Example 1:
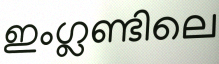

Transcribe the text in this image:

ഇംഗ്ലണ്ടിലെ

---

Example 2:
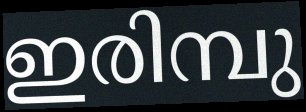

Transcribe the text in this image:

ഇരിമ്പു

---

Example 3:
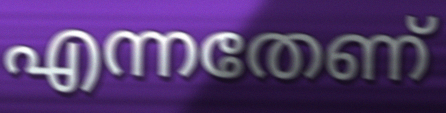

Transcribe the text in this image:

എന്നതേണ്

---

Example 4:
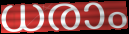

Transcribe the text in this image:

ധരാം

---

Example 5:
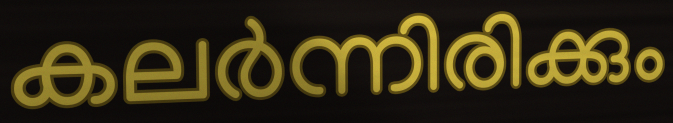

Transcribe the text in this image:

കലർന്നിരിക്കും